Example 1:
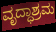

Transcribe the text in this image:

ವೃದ್ಧಾಶ್ರಮ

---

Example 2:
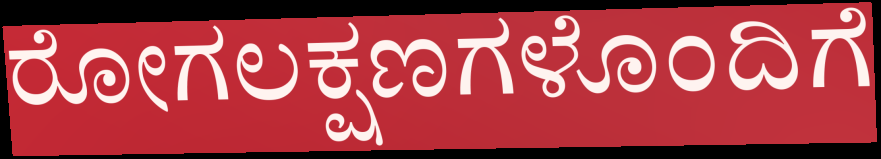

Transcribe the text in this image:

ರೋಗಲಕ್ಷಣಗಳೊಂದಿಗೆ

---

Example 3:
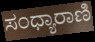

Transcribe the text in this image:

ಸಂಧ್ಯಾರಾಣಿ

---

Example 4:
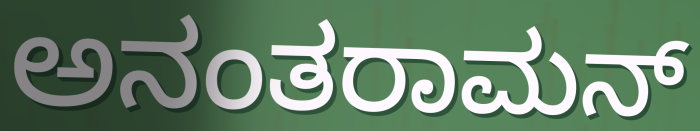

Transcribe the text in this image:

ಅನಂತರಾಮನ್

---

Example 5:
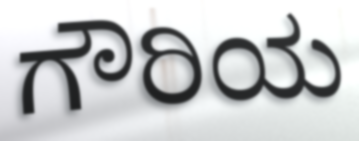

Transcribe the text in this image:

ಗೌರಿಯ